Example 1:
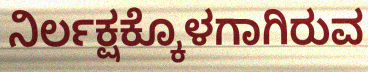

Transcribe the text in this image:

ನಿರ್ಲಕ್ಷಕ್ಕೊಳಗಾಗಿರುವ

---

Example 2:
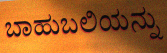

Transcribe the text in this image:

ಬಾಹುಬಲಿಯನ್ನು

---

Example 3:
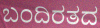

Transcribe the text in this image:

ಬಂದಿರತದ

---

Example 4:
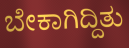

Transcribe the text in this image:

ಬೇಕಾಗಿದ್ದಿತು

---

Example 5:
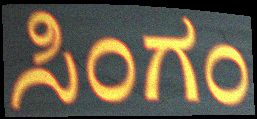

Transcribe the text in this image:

ಸಿಂಗಂ